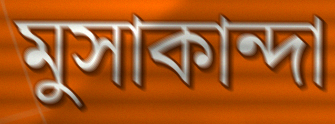
মুসাকান্দা